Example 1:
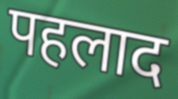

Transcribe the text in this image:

पहलाद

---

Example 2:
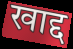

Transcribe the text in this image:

खाद्द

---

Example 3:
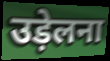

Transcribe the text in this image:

उड़ेलना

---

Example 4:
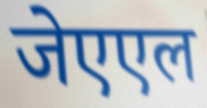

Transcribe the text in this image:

जेएएल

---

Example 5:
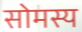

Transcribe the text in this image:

सोमस्य